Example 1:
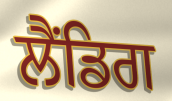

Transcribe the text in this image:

ਲੈਂਡਿਗ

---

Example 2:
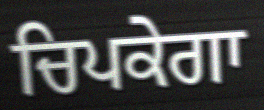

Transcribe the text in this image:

ਚਿਪਕੇਗਾ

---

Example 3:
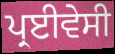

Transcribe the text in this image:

ਪ੍ਰਈਵੇਸੀ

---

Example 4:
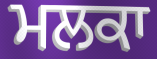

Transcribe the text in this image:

ਮਲਕਾ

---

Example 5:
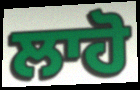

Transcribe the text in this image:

ਲਾਹੋ